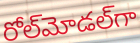
రోల్‌మోడల్‌గా